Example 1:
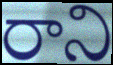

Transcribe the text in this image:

రాని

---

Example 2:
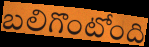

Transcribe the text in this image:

బలిగొంటోంది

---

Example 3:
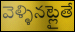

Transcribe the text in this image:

వెళ్ళినట్లైతే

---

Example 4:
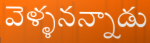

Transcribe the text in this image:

వెళ్ళనన్నాడు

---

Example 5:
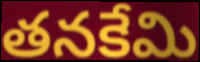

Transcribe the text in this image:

తనకేమి